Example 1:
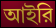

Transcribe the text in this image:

আইরি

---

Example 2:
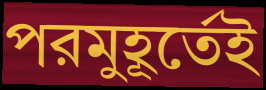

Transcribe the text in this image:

পরমুহূর্তেই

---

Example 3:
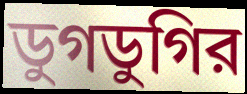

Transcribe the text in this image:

ডুগডুগির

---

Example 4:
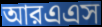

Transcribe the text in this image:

আরএএস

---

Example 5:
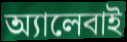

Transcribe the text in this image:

অ্যালেবাই